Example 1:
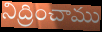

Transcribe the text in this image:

నిద్రించాము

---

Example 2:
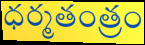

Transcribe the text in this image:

ధర్మతంత్రం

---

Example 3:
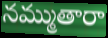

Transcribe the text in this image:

నమ్ముతారా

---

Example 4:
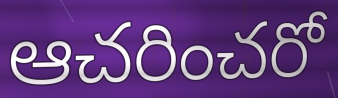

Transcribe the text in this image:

ఆచరించరో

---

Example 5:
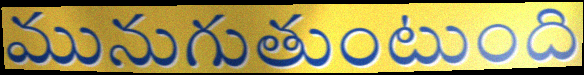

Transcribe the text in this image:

మునుగుతుంటుంది